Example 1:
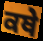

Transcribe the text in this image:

ਕਥੇ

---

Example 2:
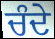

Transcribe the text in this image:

ਚੰਦੇ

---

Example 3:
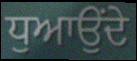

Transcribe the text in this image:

ਧੁਆਉਂਦੇ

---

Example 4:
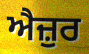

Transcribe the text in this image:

ਐਜ਼ੁਰ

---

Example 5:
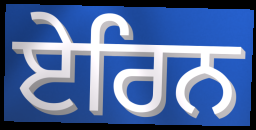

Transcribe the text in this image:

ਏਰਿਨ